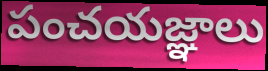
పంచయజ్ఞాలు